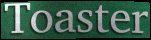
Toaster